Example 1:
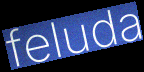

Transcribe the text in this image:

feluda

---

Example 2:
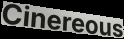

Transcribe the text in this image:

Cinereous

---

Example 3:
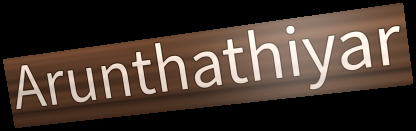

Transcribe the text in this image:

Arunthathiyar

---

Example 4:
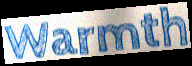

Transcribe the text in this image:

Warmth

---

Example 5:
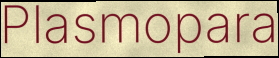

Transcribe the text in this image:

Plasmopara